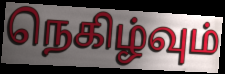
நெகிழ்வும்